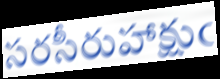
సరసీరుహాక్షుఁ